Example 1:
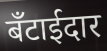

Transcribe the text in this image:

बँटाईदार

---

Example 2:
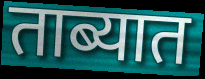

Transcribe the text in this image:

ताब्यात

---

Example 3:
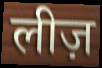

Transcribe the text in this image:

लीज़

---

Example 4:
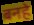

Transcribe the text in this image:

बनहे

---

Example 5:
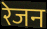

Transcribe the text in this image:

रेजन